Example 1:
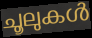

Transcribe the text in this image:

ചൂലുകൾ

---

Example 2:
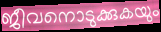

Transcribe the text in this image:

ജീവനൊടുക്കുകയും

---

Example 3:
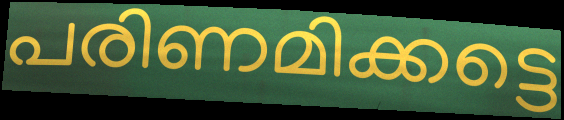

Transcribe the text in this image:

പരിണമിക്കട്ടെ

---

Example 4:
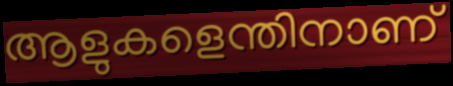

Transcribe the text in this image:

ആളുകളെന്തിനാണ്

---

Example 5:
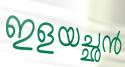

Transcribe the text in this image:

ഇളയച്ഛൻ